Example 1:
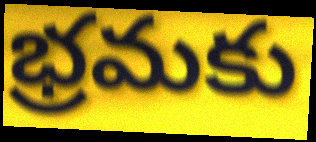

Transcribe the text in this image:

భ్రమకు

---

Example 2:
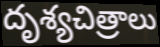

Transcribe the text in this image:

దృశ్యచిత్రాలు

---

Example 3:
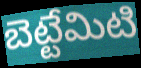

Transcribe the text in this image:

బెట్టేమిటి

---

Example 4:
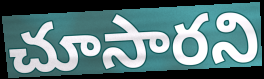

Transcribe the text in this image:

చూసారని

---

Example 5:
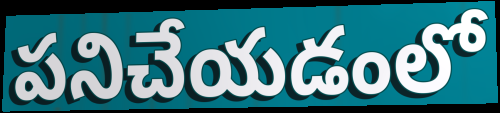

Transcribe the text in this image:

పనిచేయడంలో